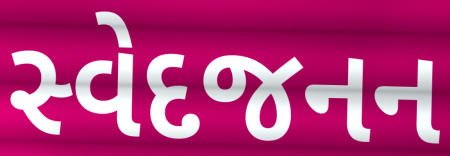
સ્વેદજનન